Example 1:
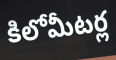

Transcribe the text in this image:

కిలోమీటర్ల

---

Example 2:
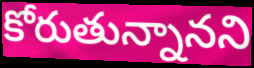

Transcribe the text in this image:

కోరుతున్నానని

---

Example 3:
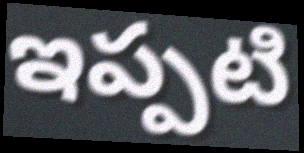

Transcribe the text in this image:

ఇప్పటి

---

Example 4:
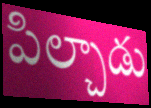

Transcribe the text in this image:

పిల్చాడు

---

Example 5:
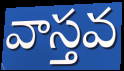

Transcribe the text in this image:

వాస్తవ